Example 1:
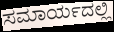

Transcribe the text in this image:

ಸಮಾರ್ಯದಲ್ಲಿ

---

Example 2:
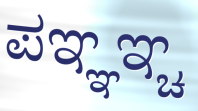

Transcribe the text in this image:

ಪಞ್ಞಞ್ಚ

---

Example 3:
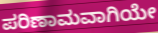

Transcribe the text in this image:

ಪರಿಣಾಮವಾಗಿಯೇ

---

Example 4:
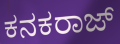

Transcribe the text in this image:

ಕನಕರಾಜ್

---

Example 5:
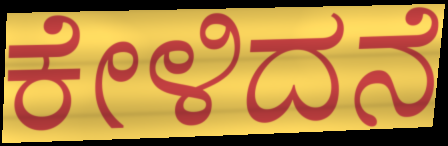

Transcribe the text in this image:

ಕೇಳಿದನೆ